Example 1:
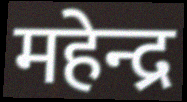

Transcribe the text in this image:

महेन्द्र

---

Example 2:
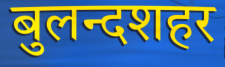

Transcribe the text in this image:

बुलन्दशहर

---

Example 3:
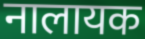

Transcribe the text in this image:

नालायक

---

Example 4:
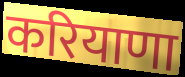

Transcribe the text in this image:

करियाणा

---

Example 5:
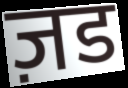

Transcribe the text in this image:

ज़ड